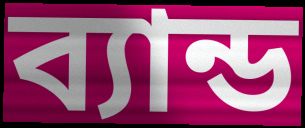
ব্যান্ড